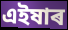
এইষাৰ